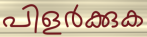
പിളർക്കുക